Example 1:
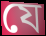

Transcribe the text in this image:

যে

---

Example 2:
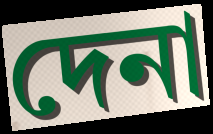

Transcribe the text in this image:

দেনা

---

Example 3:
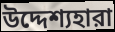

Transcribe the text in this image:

উদ্দেশ্যহারা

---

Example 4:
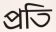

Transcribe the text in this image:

প্রতি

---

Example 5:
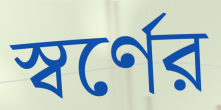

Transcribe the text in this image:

স্বর্ণের